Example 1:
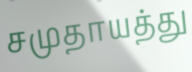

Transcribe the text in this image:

சமுதாயத்து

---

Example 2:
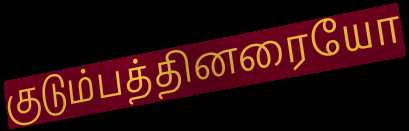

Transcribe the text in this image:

குடும்பத்தினரையோ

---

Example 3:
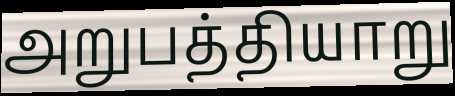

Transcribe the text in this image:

அறுபத்தியாறு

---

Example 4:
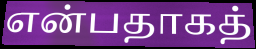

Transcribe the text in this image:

என்பதாகத்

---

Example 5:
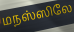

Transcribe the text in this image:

மநஸ்ஸிலே